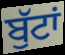
ਬੁੱਟਾਂ